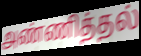
அண்ணித்தல்